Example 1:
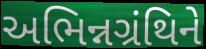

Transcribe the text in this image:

અભિન્નગ્રંથિને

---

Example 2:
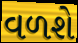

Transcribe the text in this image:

વળશે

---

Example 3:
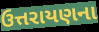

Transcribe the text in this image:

ઉત્તરાયણના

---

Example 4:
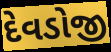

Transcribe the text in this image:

દેવડોજી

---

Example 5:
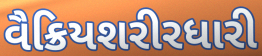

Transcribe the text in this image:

વૈક્રિયશરીરધારી